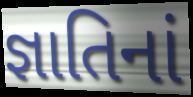
જ્ઞાતિનાં